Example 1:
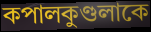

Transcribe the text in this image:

কপালকুণ্ডলাকে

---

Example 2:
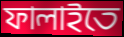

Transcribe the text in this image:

ফালাইতে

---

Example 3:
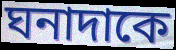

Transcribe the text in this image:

ঘনাদাকে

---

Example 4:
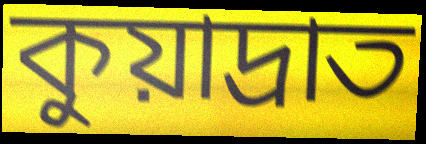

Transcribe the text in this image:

কুয়াদ্রাত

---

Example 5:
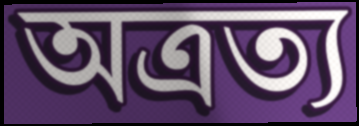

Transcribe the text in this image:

অত্রত্য